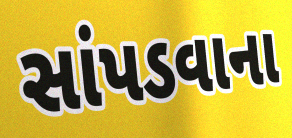
સાંપડવાના